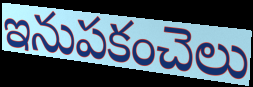
ఇనుపకంచెలు